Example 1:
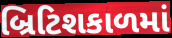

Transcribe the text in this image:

બ્રિટિશકાળમાં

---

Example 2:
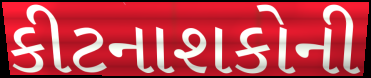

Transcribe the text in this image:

કીટનાશકોની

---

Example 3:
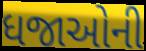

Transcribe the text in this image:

ધજાઓની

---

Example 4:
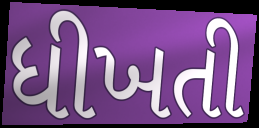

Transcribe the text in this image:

ધીખતી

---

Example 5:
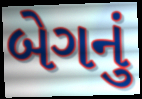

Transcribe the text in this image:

બેગનું